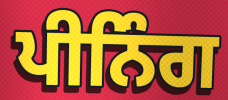
ਪੀਨਿੰਗ